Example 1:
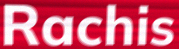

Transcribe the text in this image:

Rachis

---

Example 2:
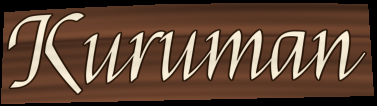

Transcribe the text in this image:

Kuruman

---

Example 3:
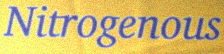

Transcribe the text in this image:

Nitrogenous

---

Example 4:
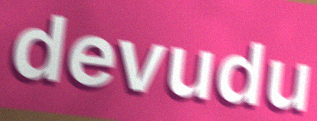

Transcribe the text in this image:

devudu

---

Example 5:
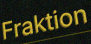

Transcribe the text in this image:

Fraktion